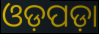
ଓଡ଼ପଡ଼ା